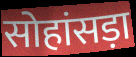
सोहांसड़ा